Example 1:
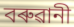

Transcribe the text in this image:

বৰুৱানী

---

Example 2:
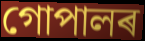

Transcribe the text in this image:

গোপালৰ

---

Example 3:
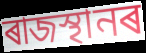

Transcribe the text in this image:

ৰাজস্থানৰ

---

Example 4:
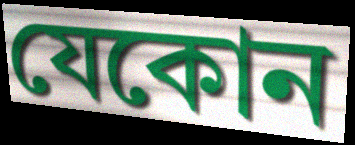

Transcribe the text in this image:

যেকোন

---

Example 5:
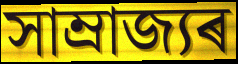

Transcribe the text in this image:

সাম্ৰাজ্যৰ